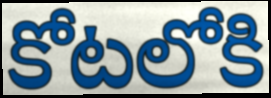
కోటలోకి